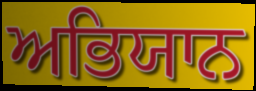
ਅਭਿਯਾਨ